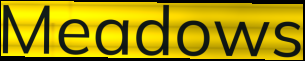
Meadows